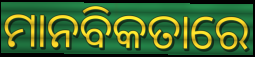
ମାନବିକତାରେ